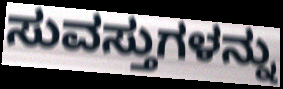
ಸುವಸ್ತುಗಳನ್ನು